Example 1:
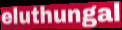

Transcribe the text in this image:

eluthungal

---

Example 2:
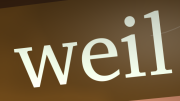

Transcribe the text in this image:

weil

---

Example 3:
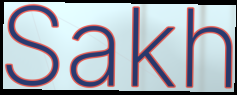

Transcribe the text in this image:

Sakh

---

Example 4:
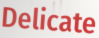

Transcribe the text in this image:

Delicate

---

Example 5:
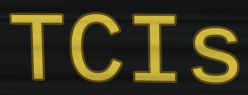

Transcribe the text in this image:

TCIs